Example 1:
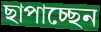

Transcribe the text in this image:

ছাপাচ্ছেন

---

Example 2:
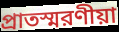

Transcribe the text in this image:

প্রাতস্মরণীয়া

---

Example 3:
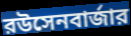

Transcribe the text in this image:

রউসেনবার্জার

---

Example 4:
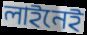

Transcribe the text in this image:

লাইনেই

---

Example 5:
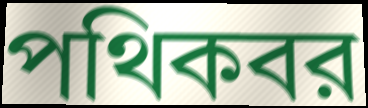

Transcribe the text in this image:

পথিকবর